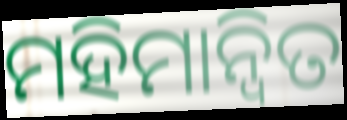
ମହିମାନ୍ଵିତ